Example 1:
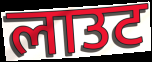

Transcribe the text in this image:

लाउट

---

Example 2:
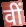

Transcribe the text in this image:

वीं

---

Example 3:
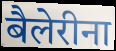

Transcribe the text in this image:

बैलेरीना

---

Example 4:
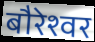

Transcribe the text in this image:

बौरेश्वर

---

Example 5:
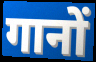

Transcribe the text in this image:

गानों